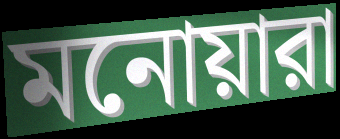
মনোয়ারা